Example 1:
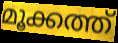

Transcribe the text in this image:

മൂക്കത്ത്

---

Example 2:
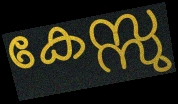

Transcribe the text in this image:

കേസ്സു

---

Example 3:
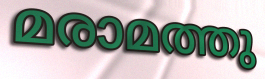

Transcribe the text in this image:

മരാമത്തു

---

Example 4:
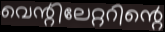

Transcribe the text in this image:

വെന്റിലേറ്ററിന്റെ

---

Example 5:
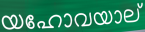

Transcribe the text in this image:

യഹോവയാല്